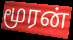
மூரன்